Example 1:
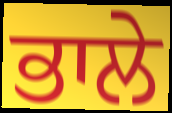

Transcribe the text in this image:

ਭਾਲੇ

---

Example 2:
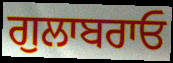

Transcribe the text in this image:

ਗੁਲਾਬਰਾਓ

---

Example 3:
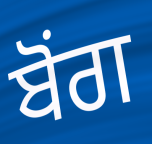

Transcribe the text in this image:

ਬੋਂਗ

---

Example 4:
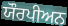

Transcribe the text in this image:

ਯੌਰਪੀਅਨ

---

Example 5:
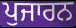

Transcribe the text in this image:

ਪੁਜਾਰਨ